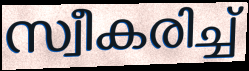
സ്വീകരിച്ച്